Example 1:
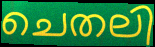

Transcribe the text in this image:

ചെതലി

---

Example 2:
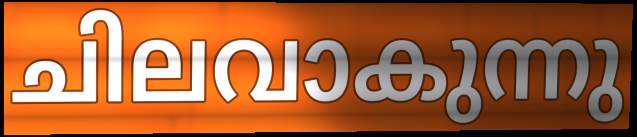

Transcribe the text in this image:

ചിലവാകുന്നു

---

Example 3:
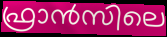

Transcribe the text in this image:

ഫ്രാൻസിലെ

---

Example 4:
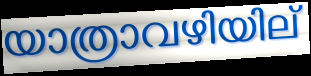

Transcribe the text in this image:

യാത്രാവഴിയില്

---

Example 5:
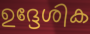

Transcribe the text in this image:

ഉദ്ദേശിക